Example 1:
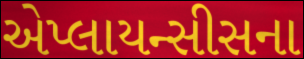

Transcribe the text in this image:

એપ્લાયન્સીસના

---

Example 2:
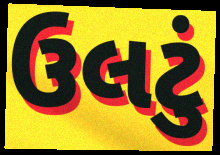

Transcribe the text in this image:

ઉલટું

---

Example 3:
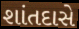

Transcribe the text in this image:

શાંતદાસે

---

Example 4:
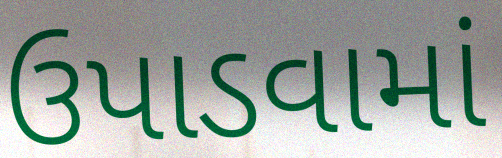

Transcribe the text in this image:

ઉપાડવામાં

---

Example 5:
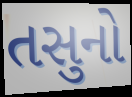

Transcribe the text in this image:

તસુનો